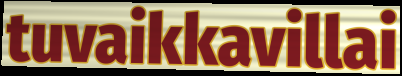
tuvaikkavillai